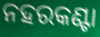
ନହରକଣ୍ଟା